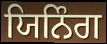
ਯਿਨਿੰਗ